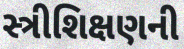
સ્ત્રીશિક્ષણની